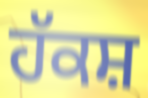
ਹੱਕਸ਼